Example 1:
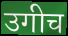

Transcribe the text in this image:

उगीच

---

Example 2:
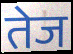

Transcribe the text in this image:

तेज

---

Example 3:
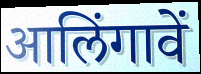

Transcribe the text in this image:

आलिंगावें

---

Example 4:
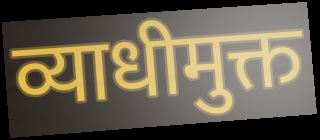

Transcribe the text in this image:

व्याधीमुक्त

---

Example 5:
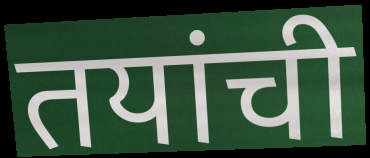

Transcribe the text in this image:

तयांची